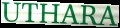
UTHARA